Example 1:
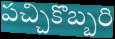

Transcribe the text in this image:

పచ్చికొబ్బరి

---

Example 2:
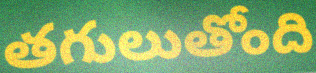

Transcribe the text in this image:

తగులుతోంది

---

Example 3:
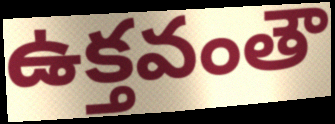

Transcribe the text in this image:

ఉక్తవంతౌ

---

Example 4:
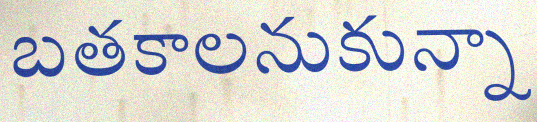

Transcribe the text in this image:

బతకాలనుకున్నా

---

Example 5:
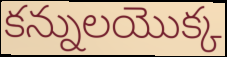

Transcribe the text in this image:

కన్నులయొక్క